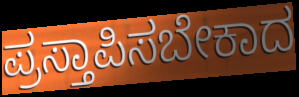
ಪ್ರಸ್ತಾಪಿಸಬೇಕಾದ